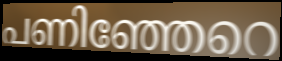
പണിഞ്ഞേറെ